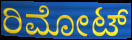
ರಿಮೋಟ್